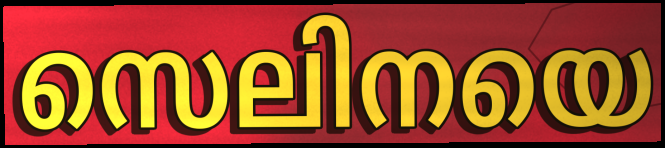
സെലിനയെ